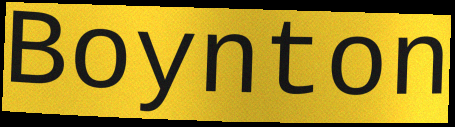
Boynton